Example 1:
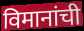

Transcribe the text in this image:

विमानांची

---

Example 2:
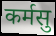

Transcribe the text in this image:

कर्मसु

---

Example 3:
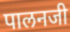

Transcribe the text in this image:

पालनजी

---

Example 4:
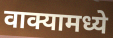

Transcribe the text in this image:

वाक्यामध्ये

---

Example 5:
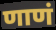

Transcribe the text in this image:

णाणं